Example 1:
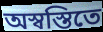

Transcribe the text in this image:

অস্বস্তিতে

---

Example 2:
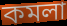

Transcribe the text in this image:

কমলা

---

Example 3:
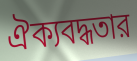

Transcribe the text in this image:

ঐক্যবদ্ধতার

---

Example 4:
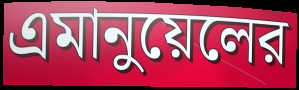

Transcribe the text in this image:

এমানুয়েলের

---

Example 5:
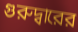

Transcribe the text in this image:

গুরুদ্বারের